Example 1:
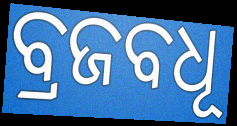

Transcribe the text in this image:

ବ୍ରଜବଧୂ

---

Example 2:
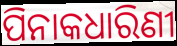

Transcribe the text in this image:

ପିନାକଧାରିଣୀ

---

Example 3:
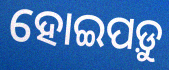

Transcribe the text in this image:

ହୋଇପଡ଼ୁ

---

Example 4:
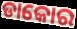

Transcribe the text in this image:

ଡାକୋର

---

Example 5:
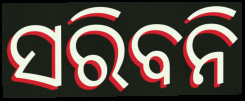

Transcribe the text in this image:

ସରିବନି